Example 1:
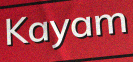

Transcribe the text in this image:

Kayam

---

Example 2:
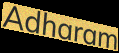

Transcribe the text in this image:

Adharam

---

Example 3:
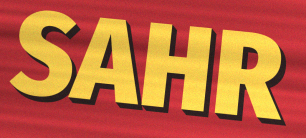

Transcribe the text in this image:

SAHR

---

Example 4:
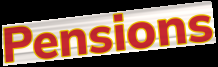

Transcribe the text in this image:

Pensions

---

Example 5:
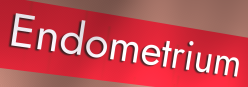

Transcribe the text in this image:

Endometrium